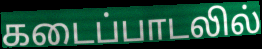
கடைப்பாடலில்